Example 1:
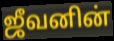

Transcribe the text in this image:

ஜீவனின்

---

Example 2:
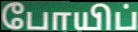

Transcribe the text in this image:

போயிப்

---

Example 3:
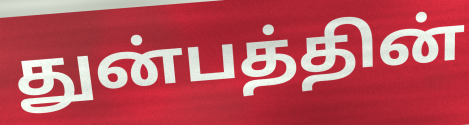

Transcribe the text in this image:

துன்பத்தின்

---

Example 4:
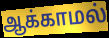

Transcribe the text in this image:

ஆக்காமல்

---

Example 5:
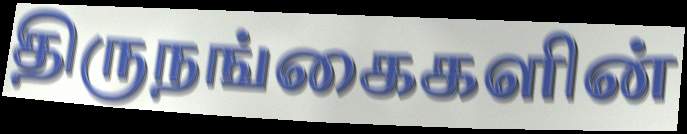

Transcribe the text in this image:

திருநங்கைகளின்